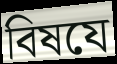
বিষযে